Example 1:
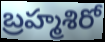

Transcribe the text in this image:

బ్రహ్మశిరో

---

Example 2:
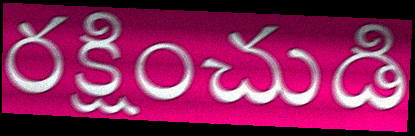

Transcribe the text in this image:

రక్షించుడి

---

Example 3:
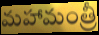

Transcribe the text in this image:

మహామంత్రీ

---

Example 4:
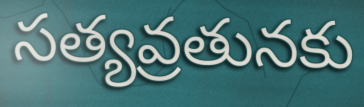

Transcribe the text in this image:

సత్యవ్రతునకు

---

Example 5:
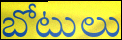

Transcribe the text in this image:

బోటులు